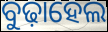
ବୁଢ଼ାହେଲ